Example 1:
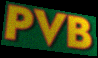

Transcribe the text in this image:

PVB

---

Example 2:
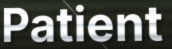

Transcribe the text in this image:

Patient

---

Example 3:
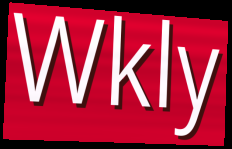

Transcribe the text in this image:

Wkly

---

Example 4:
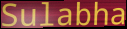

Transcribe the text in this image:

Sulabha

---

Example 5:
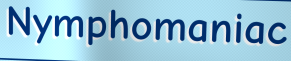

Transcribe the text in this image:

Nymphomaniac